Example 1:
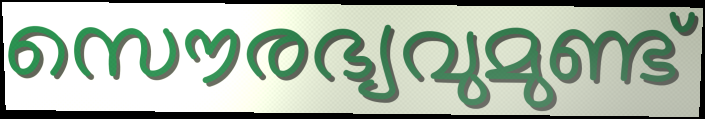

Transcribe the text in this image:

സൌരഭ്യവുമുണ്ട്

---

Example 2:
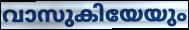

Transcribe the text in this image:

വാസുകിയേയും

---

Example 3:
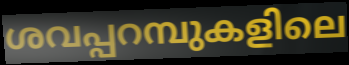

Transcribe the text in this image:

ശവപ്പറമ്പുകളിലെ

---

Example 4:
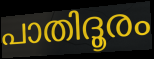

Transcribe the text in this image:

പാതിദൂരം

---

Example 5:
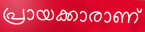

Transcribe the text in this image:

പ്രായക്കാരാണ്